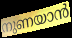
നുണയാൻ